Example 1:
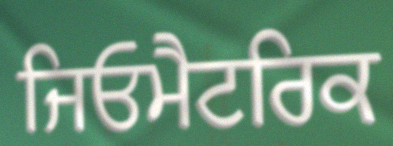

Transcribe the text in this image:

ਜਿਓਮੈਟਰਿਕ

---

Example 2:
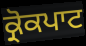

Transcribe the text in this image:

ਕ੍ਰੋਕਪਾਟ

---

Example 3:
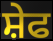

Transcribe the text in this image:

ਸ਼ੇਫ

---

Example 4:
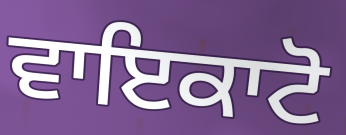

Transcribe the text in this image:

ਵਾਇਕਾਟੋ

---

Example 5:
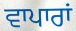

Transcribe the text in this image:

ਵਾਪਾਰਾਂ